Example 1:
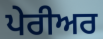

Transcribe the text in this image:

ਪੇਰੀਅਰ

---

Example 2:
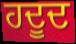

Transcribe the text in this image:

ਹਦੂਦ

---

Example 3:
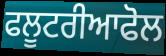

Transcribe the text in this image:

ਫਲੂਟਰੀਆਫੋਲ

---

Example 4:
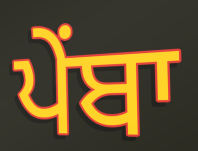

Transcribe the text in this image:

ਪੇਂਬਾ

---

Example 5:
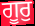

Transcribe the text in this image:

ਗੂਰੁ